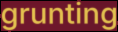
grunting